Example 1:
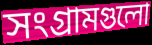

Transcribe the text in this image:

সংগ্রামগুলো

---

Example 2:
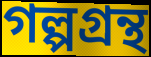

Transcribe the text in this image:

গল্পগ্রন্থ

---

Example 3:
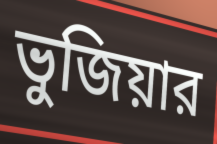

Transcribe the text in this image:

ভুজিয়ার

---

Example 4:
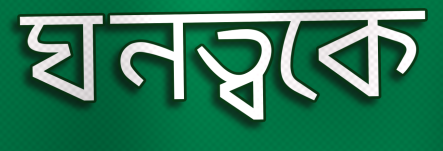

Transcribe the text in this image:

ঘনত্বকে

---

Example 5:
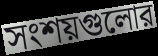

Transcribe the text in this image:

সংশয়গুলোর